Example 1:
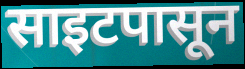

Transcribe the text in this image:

साइटपासून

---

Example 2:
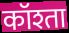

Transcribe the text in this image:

कॉश्ता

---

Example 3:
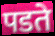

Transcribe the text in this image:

पडते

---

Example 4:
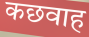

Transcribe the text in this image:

कछवाह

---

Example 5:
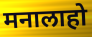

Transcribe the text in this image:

मनालाहो